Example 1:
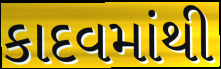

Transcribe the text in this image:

કાદવમાંથી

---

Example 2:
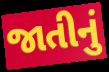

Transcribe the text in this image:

જાતીનું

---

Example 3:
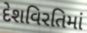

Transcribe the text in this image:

દેશવિરતિમાં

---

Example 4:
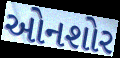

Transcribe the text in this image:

ઓનશોર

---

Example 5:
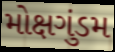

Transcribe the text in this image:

મોક્ષગુંડમ